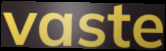
vaste